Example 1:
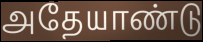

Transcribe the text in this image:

அதேயாண்டு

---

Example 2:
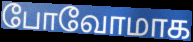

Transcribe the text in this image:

போவோமாக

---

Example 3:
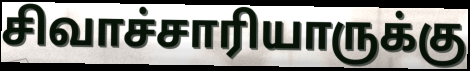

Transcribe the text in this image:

சிவாச்சாரியாருக்கு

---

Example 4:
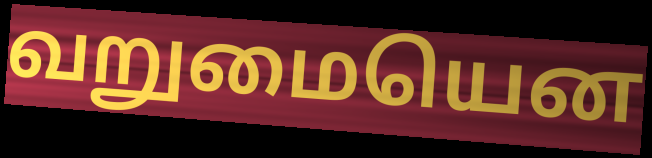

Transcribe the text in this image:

வறுமையென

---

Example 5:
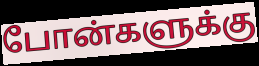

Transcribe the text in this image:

போன்களுக்கு